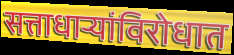
सत्ताधाऱ्यांविरोधात